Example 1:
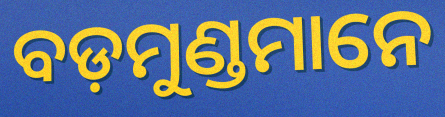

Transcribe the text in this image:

ବଡ଼ମୁଣ୍ଡମାନେ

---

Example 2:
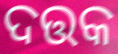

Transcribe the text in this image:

ଦତ୍ତକ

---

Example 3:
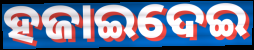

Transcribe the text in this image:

ହଜାଇଦେଇ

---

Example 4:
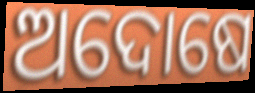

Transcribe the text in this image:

ଅଦୋଷେ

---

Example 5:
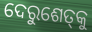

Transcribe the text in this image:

ଦେରୁଶେତ୍‌କୁ